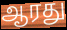
ஆரது